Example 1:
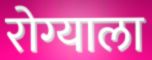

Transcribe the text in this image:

रोग्याला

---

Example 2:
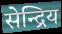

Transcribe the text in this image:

सेन्द्रिय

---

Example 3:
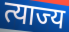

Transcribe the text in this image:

त्याज्य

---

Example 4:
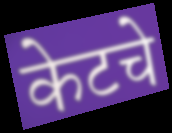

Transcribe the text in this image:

केटचे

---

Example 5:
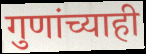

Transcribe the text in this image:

गुणांच्याही